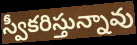
స్వీకరిస్తున్నావు